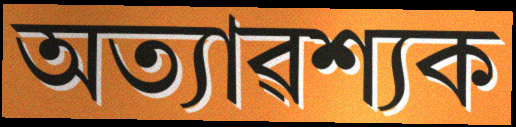
অত্যাৱশ্যক